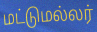
மட்டுமல்லர்